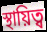
স্থায়িত্ব